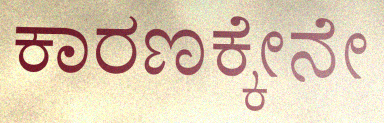
ಕಾರಣಕ್ಕೇನೇ